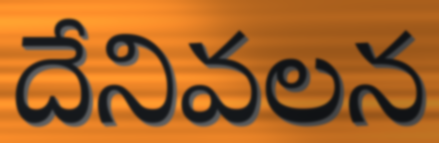
దేనివలన